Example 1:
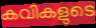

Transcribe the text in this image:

കവികളുടെ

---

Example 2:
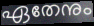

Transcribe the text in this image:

ഏതേനും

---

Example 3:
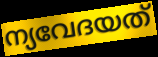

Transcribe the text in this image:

ന്യവേദയത്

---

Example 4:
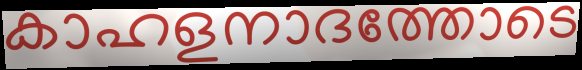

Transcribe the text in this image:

കാഹളനാദത്തോടെ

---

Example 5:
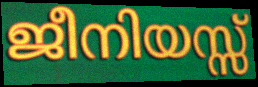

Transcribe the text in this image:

ജീനിയസ്സ്